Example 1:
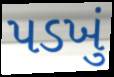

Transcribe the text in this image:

પડખું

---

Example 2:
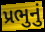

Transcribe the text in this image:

પ્રભુનું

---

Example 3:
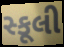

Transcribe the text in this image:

સ્કૂલી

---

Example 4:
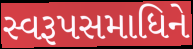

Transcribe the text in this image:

સ્વરૂપસમાધિને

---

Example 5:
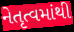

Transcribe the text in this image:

નેતૃત્વમાંથી